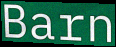
Barn